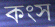
কংস